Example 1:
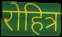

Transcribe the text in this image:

रोहित्र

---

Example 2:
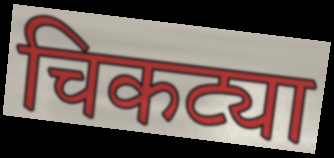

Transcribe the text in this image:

चिकट्या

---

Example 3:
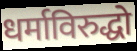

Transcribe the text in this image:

धर्माविरुद्धो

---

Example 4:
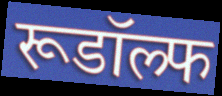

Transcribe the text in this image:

रूडॉल्फ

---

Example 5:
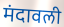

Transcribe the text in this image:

मंदावली